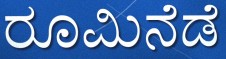
ರೂಮಿನೆಡೆ